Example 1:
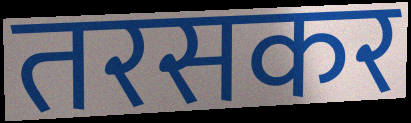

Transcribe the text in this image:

तरसकर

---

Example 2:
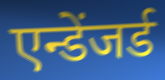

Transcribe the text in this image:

एन्डेंजर्ड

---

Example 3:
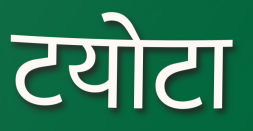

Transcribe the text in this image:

टयोटा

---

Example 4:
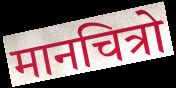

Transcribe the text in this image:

मानचित्रो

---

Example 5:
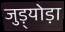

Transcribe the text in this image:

जुड़्योड़ा